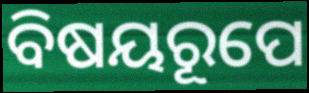
ବିଷୟରୂପେ